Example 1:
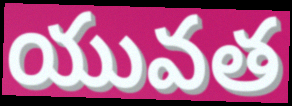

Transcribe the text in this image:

యువత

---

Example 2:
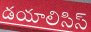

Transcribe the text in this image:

డయాలిసిస్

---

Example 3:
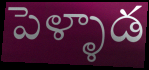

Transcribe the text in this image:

పెళ్ళాడ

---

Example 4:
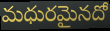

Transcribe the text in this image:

మధురమైనదో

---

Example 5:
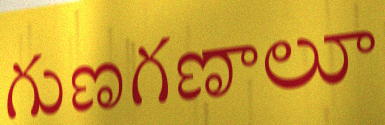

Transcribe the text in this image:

గుణగణాలూ